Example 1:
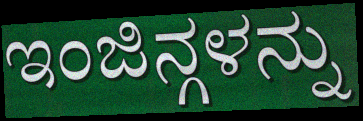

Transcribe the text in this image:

ಇಂಜಿನ್ಗಳನ್ನು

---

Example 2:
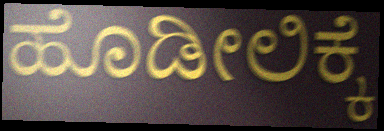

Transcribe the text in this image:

ಹೊಡೀಲಿಕ್ಕೆ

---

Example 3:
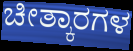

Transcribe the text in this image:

ಚೀತ್ಕಾರಗಳ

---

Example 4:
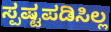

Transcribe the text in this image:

ಸ್ಪಷ್ಟಪಡಿಸಿಲ್ಲ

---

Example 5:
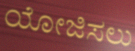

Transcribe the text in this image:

ಯೋಜಿಸಲು